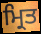
ਮ੍ਰਿਤ